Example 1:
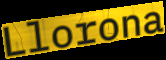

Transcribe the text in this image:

Llorona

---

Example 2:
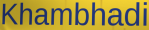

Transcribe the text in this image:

Khambhadi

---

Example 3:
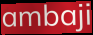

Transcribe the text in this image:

ambaji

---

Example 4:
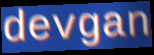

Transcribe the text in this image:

devgan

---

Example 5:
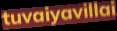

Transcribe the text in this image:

tuvaiyavillai